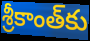
శ్రీకాంత్‌కు